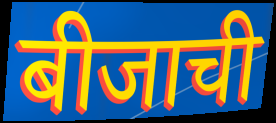
बीजाची